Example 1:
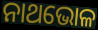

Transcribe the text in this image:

ନାଥଭୋଳ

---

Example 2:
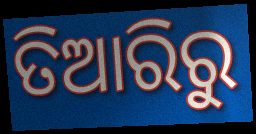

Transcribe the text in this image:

ତିଆରିରୁ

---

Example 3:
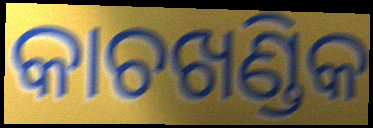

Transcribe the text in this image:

କାଚଖଣ୍ଡିକ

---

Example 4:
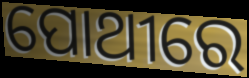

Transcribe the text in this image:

ପୋଥୀରେ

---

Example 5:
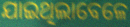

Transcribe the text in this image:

ଯାଇଥିଲାବେଳେ